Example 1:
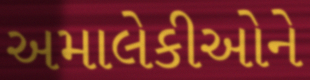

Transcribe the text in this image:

અમાલેકીઓને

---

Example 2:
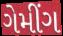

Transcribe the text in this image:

ગેમીંગ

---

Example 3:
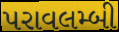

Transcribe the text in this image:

પરાવલમ્બી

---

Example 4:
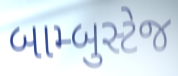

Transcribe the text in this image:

બામ્બુસ્ટેજ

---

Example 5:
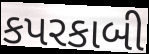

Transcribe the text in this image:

કપરકાબી